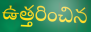
ఉత్తరించిన